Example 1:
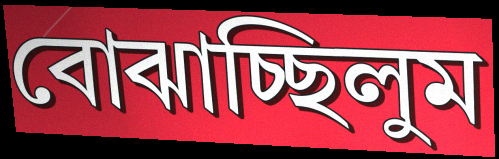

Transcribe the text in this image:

বোঝাচ্ছিলুম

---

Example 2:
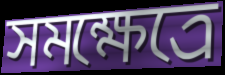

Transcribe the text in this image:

সমক্ষেত্রে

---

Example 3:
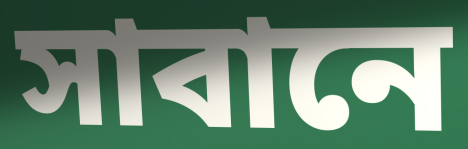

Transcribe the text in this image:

সাবানে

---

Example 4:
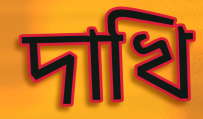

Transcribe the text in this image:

দাখি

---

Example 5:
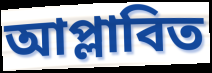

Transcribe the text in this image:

আপ্লাবিত